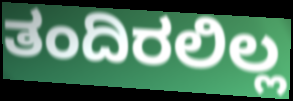
ತಂದಿರಲಿಲ್ಲ